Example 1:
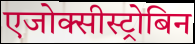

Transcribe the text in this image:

एजोक्सीस्ट्रोबिन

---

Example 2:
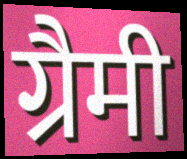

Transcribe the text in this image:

ग्रैमी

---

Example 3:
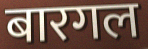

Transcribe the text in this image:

बारगल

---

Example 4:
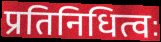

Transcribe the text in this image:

प्रतिनिधित्वः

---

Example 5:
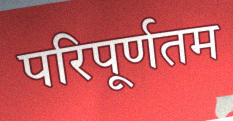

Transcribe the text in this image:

परिपूर्णतम